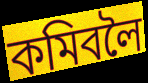
কমিবলৈ